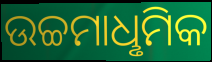
ଉଚ୍ଚମାଧୢମିକ